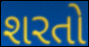
શરતો